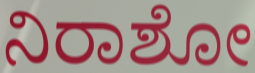
ನಿರಾಶೋ